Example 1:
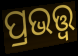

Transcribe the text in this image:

ପ୍ରଭତ୍ତ୍ଵ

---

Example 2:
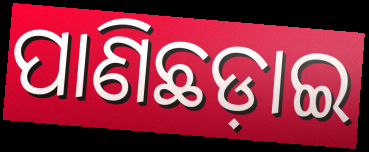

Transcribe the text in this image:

ପାଣିଛଡ଼ାଇ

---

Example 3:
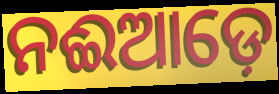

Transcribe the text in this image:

ନଈଆଡ଼େ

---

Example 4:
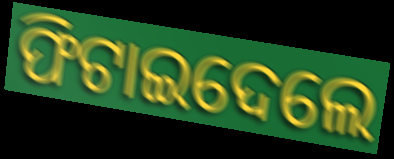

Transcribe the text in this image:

ଫିଟାଇଦେଲେ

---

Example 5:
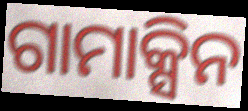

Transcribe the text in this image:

ଗାମାକ୍ସିନ